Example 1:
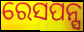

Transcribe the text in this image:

ରେସପନ୍ସ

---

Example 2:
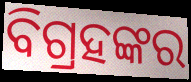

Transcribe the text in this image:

ବିଗ୍ରହଙ୍କର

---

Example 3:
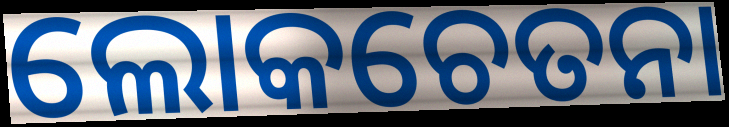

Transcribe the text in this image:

ଲୋକଚେତନା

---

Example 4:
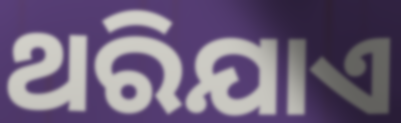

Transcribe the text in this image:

ଥରିଯାଏ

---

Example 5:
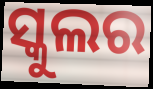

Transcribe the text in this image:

ସ୍କୁଲର